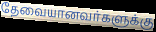
தேவையானவர்களுக்கு